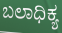
ಬಲಾಧಿಕ್ಯ